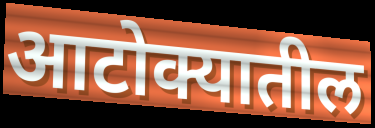
आटोक्यातील